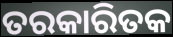
ତରକାରିତକ